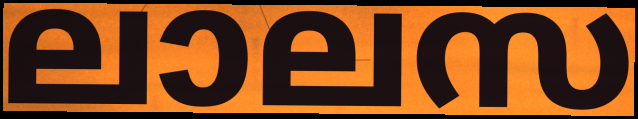
ലാലസ